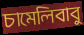
চামেলিবাবু